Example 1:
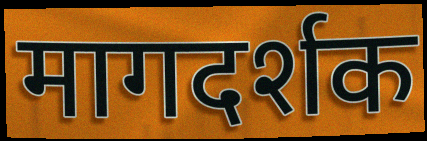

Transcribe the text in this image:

मागदर्शक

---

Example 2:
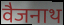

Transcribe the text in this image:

वैजनाथ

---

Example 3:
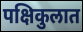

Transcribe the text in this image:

पक्षिकुलात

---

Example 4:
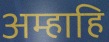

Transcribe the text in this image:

अम्हाहि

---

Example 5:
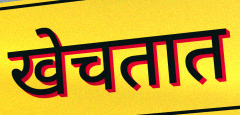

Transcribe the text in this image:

खेचतात